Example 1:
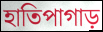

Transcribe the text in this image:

হাতিপাগাড়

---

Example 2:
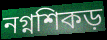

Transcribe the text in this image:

নগ্নশিকড়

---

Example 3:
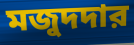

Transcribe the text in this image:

মজুদদার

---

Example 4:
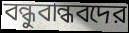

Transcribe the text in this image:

বন্ধুবান্ধবদের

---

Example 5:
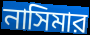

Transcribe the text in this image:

নাসিমার